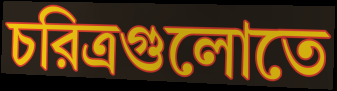
চরিত্রগুলোতে